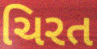
ચિરત